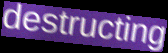
destructing